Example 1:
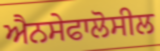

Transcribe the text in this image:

ਐਨਸੇਫਾਲੋਸੀਲ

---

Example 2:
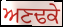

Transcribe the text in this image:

ਅਣਢਕੇ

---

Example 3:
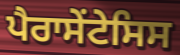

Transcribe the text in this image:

ਪੈਰਾਸੇਂਟੇਸਿਸ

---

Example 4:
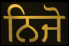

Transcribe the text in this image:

ਨਿਜੋ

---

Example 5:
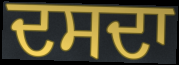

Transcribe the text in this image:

ਦਸਦਾ